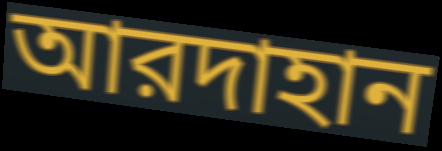
আরদাহান